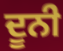
ਦੂਨੀ